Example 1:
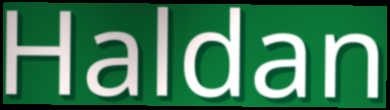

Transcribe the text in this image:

Haldan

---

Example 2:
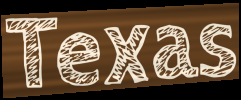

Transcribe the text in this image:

Texas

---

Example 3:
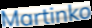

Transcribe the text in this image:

Martinko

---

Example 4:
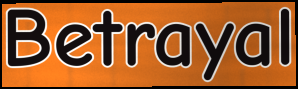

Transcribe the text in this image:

Betrayal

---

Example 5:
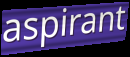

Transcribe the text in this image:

aspirant